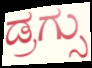
ಡ್ರಗ್ಸು